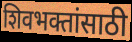
शिवभक्तांसाठी